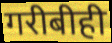
गरीबीही